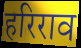
हरिराव